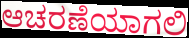
ಆಚರಣೆಯಾಗಲಿ